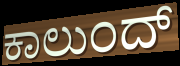
ಕಾಲುಂದ್